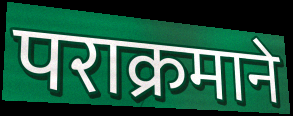
पराक्रमाने